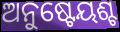
ଅନୁଷ୍ଟେୟଶ୍ଚ